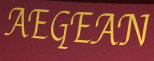
AEGEAN